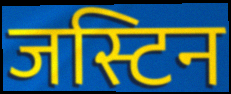
जस्‍टिन